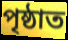
পৃষ্ঠাত